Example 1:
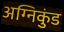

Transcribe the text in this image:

अग्निकुंड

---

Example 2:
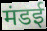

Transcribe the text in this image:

मंडई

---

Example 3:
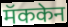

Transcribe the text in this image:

मॅककेन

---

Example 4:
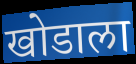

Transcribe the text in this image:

खोडाला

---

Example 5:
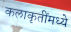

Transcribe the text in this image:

कलाकृतींमध्ये